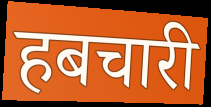
हबचारी